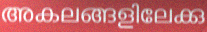
അകലങ്ങളിലേക്കു